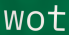
wot